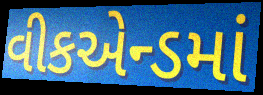
વીકએન્ડમાં